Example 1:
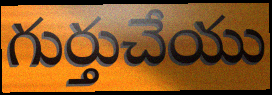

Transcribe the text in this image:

గుర్తుచేయు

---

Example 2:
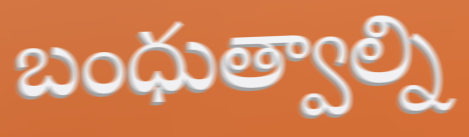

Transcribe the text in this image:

బంధుత్వాల్ని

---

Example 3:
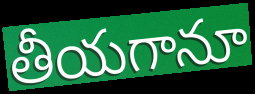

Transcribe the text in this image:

తీయగానూ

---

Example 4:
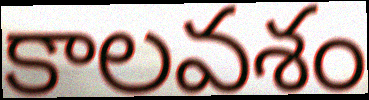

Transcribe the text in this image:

కాలవశం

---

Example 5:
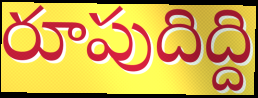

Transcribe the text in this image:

రూపుదిద్ది